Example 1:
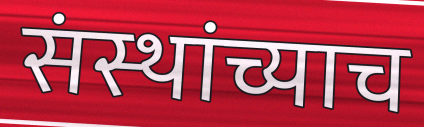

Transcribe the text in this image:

संस्थांच्याच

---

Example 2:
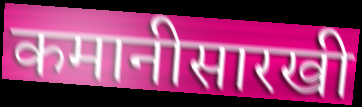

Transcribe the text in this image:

कमानीसारखी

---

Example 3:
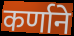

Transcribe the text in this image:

कर्णाने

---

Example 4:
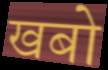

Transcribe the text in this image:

खबो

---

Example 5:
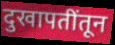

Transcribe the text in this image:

दुखापतींतून